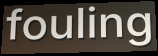
fouling